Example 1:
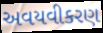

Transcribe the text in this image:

અવયવીકરણ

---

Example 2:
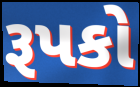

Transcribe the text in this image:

રૂપકો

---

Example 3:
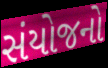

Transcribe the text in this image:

સંયોજનો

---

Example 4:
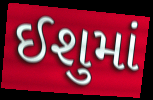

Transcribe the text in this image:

ઈશુમાં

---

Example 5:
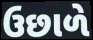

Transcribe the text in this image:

ઉછાળે